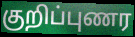
குறிப்புணர